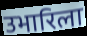
उभारिला